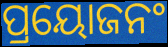
ପ୍ରୟୋଜନଂ